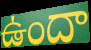
ఉందా